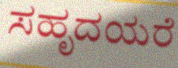
ಸಹೃದಯರೆ